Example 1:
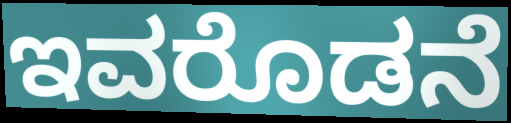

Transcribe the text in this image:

ಇವರೊಡನೆ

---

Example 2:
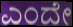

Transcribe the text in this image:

ಎಂದೇ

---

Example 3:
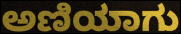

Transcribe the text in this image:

ಅಣಿಯಾಗು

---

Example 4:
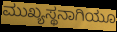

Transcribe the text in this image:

ಮುಖ್ಯಸ್ಥನಾಗಿಯೂ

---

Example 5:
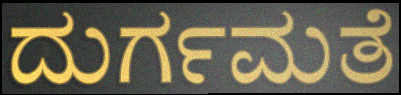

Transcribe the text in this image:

ದುರ್ಗಮತೆ